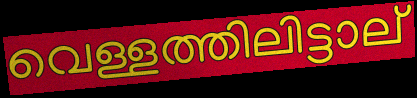
വെള്ളത്തിലിട്ടാല്